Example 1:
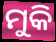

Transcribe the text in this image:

ମୁକି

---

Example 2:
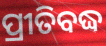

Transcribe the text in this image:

ପ୍ରୀତିବଦ୍ଧ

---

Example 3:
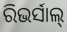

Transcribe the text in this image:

ରିଭର୍ସାଲ୍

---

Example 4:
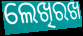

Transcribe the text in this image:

ଲେଖିରଖ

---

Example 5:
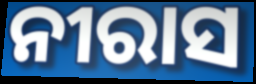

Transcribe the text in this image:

ନୀରାସ